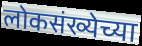
लोकसंख्येच्या